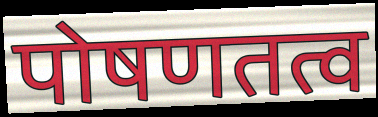
पोषणतत्व